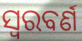
ସ୍ଵରବର୍ଣ